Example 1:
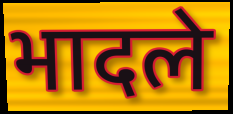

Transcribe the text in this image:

भादले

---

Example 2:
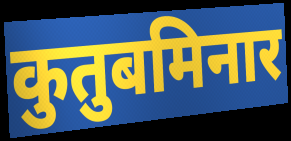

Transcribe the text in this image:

कुतुबमिनार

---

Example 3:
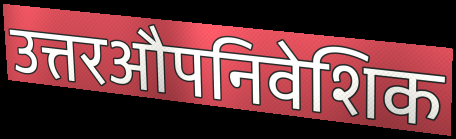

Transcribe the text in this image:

उत्तरऔपनिवेशिक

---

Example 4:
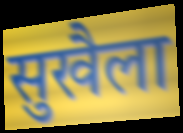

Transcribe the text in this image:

सुखैला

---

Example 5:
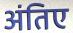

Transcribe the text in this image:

अंतिए